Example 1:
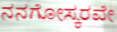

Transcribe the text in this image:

ನನಗೋಸ್ಕರವೇ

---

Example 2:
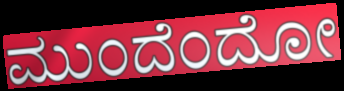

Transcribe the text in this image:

ಮುಂದೆಂದೋ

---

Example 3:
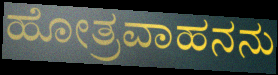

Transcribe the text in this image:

ಹೋತ್ರವಾಹನನು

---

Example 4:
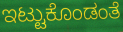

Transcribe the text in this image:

ಇಟ್ಟುಕೊಂಡಂತೆ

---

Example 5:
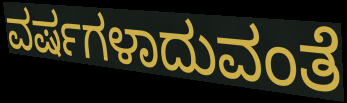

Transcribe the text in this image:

ವರ್ಷಗಳಾದುವಂತೆ